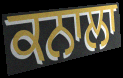
ਕਨਾਲਾ